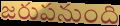
జరుపనుంది